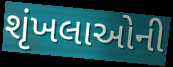
શૃંખલાઓની